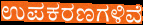
ಉಪಕರಣಗಳಿವೆ